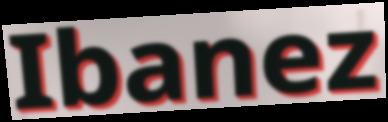
Ibanez